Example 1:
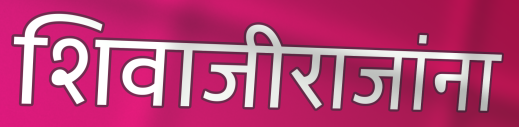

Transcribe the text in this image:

शिवाजीराजांना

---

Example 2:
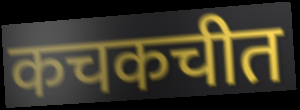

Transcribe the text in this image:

कचकचीत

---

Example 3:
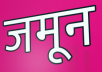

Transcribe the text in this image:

जमून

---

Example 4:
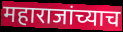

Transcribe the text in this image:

महाराजांच्याच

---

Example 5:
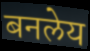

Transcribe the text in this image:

बनलेय